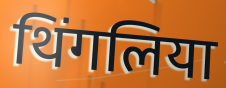
थिंगलिया